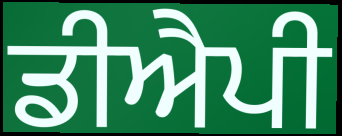
ਡੀਐਪੀ